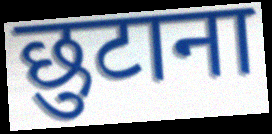
छुटाना